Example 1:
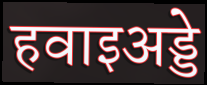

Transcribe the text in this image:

हवाइअड्डे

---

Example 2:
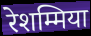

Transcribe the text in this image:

रेशम्मिया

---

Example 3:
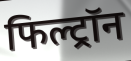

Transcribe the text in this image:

फिल्ट्रॉन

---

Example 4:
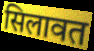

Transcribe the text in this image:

सिलावत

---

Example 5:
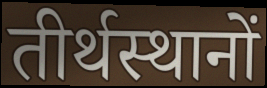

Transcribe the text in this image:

तीर्थस्थानों